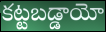
కట్టబడ్డాయో